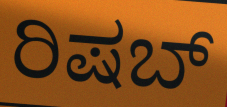
ರಿಷಬ್